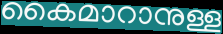
കൈമാറാനുള്ള